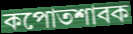
কপোতশাবক